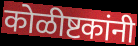
कोळीष्टकांनी